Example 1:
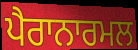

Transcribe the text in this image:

ਪੈਰਾਨਾਰਮਲ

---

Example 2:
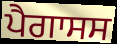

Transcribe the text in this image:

ਪੈਗਾਸਸ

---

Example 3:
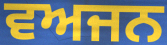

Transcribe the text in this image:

ਵਅਜਨ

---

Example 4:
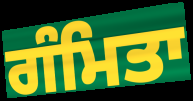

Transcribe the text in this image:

ਗੰਮਿਤਾ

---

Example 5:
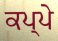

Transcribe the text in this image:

ਕਪ੍ਪੇ